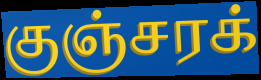
குஞ்சரக்